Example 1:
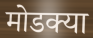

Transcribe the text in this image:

मोडक्या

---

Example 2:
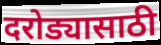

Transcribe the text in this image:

दरोड्यासाठी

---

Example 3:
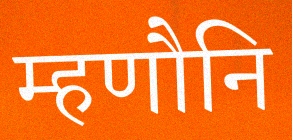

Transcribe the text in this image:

म्हणौनि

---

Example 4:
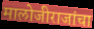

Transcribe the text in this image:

मालोजीराजांचा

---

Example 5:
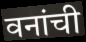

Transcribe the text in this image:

वनांची